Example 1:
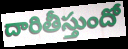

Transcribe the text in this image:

దారితీస్తుందో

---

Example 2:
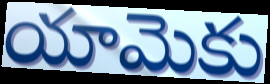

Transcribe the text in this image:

యామెకు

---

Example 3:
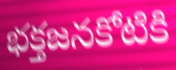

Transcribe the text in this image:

భక్తజనకోటికి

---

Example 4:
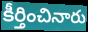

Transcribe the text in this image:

కీర్తించినారు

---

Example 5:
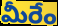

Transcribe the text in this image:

మీరేం